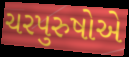
ચરપુરુષોએ